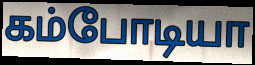
கம்போடியா